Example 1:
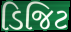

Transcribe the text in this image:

ડિજિટ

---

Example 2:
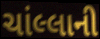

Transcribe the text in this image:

ચાંલ્લાની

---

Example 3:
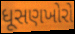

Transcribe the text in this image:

ધૂસણખોરો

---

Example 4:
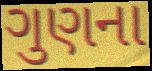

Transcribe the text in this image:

ગુણના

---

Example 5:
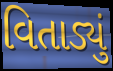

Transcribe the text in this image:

વિતાડ્યું